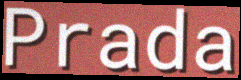
Prada